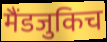
मैंडजुकिच